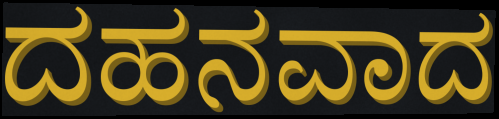
ದಹನವಾದ